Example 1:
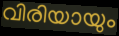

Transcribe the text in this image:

വിരിയായും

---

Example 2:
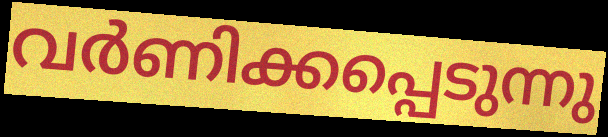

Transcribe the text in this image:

വർണിക്കപ്പെടുന്നു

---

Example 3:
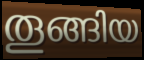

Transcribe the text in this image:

തൂങ്ങിയ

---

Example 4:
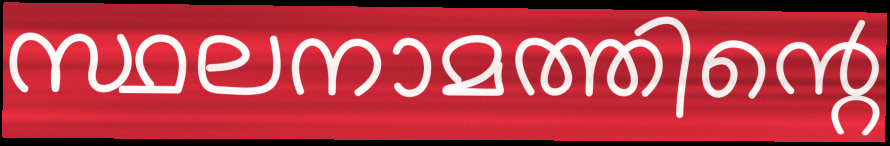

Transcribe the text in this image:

സ്ഥലനാമത്തിന്റെ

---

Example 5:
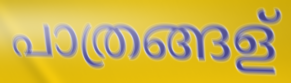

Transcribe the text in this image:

പാത്രങ്ങള്